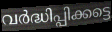
വർദ്ധിപ്പിക്കട്ടെ